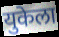
युकेला